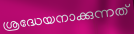
ശ്രദ്ധേയനാക്കുന്നത്